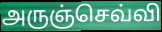
அருஞ்செவ்வி